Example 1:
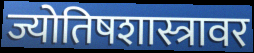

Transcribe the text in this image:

ज्योतिषशास्त्रावर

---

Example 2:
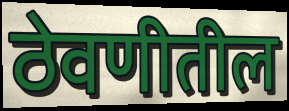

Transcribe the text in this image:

ठेवणीतील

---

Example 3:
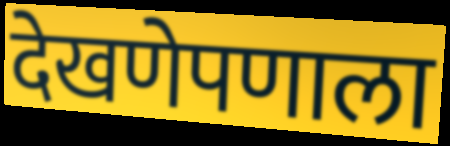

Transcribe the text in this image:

देखणेपणाला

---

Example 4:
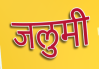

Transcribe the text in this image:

जलुमी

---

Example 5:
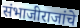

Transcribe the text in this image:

संभाजीराजांचे